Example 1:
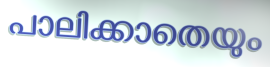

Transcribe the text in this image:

പാലിക്കാതെയും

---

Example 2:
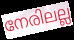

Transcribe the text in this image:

നേരിലല്ല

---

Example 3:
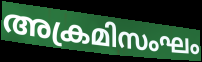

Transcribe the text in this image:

അക്രമിസംഘം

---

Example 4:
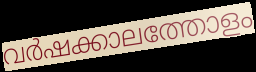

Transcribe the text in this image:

വർഷക്കാലത്തോളം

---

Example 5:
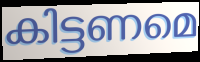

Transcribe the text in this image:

കിട്ടണമെ